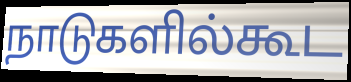
நாடுகளில்கூட